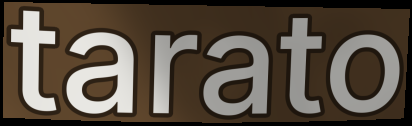
tarato